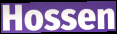
Hossen